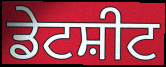
ਡੇਟਸ਼ੀਟ